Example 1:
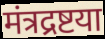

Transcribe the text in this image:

मंत्रद्रष्टया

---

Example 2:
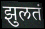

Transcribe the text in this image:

झुलतं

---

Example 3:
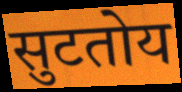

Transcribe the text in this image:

सुटतोय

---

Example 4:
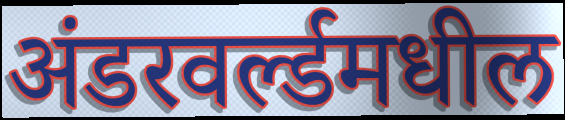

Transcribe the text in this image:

अंडरवर्ल्डमधील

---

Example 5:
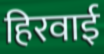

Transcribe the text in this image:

हिरवाई